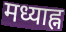
मध्याह्न